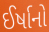
ઈર્ષાનો